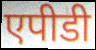
एपीडी